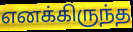
எனக்கிருந்த